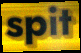
spit